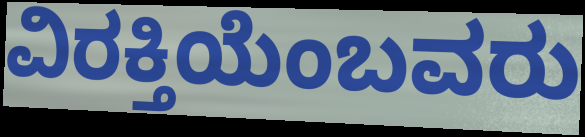
ವಿರಕ್ತಿಯೆಂಬವರು